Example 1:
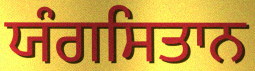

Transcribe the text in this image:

ਯੰਗਸਿਤਾਨ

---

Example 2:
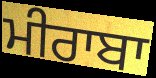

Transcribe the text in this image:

ਮੀਰਾਬਾ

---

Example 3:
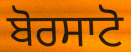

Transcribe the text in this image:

ਬੋਰਸਾਟੋ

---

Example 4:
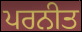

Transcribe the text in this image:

ਪਰਨੀਤ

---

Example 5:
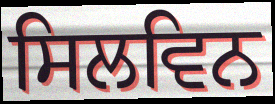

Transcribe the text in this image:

ਸਿਲਵਿਨ